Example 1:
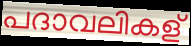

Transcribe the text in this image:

പദാവലികള്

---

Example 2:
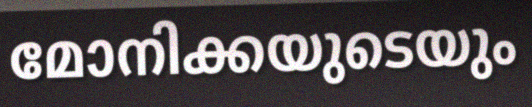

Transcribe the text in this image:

മോനിക്കയുടെയും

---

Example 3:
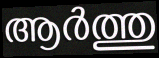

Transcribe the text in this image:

ആർത്തു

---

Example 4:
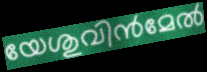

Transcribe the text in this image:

യേശുവിൻമേൽ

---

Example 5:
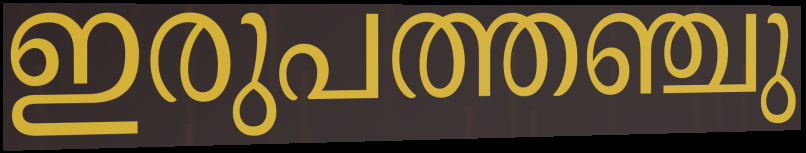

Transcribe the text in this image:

ഇരുപത്തഞ്ചു